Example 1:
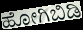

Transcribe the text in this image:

ಹೋಗಿಬಿಡಿ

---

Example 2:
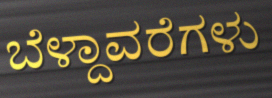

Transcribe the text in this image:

ಬೆಳ್ದಾವರೆಗಳು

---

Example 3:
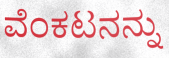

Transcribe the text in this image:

ವೆಂಕಟನನ್ನು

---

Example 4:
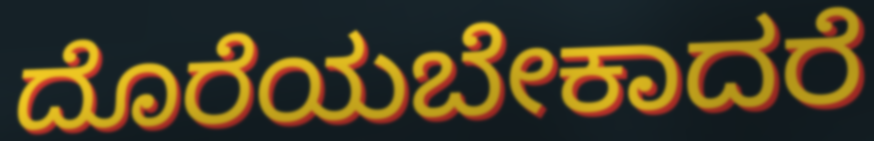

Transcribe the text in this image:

ದೊರೆಯಬೇಕಾದರೆ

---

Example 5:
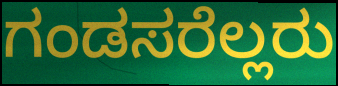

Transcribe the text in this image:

ಗಂಡಸರೆಲ್ಲರು